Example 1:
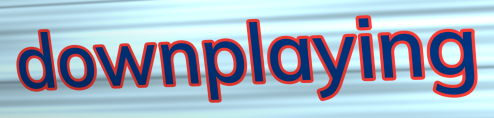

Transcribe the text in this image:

downplaying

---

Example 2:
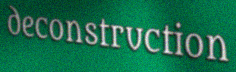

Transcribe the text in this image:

deconstruction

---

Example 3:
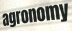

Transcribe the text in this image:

agronomy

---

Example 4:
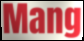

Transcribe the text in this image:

Mang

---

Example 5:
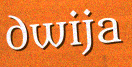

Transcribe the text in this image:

dwija